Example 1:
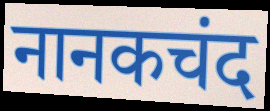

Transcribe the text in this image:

नानकचंद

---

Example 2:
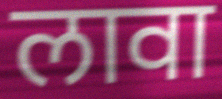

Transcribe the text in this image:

लावा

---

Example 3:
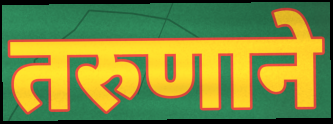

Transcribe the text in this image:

तरुणाने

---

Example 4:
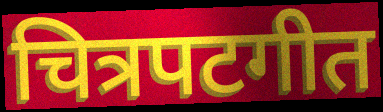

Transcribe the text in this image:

चित्रपटगीत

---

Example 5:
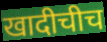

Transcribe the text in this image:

खादीचीच